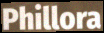
Phillora